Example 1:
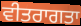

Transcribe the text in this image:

ਵੀਤਰਾਗਤਾ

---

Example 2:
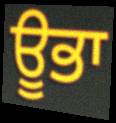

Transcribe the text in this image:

ਊਭਾ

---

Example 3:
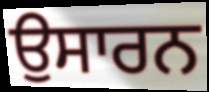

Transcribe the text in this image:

ਉਸਾਰਨ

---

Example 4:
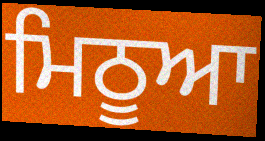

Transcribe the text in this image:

ਮਿਠੂਆ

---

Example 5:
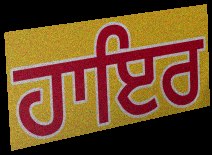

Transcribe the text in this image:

ਹਾਇਰ